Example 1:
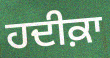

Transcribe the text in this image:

ਹਦੀਕ਼ਾ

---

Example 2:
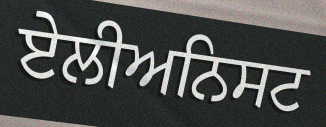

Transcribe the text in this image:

ਏਲੀਅਨਿਸਟ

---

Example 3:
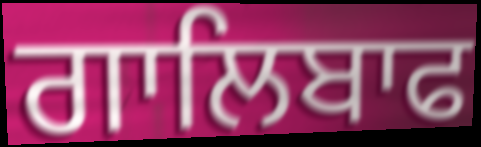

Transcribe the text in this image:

ਗਾਲਿਬਾਫ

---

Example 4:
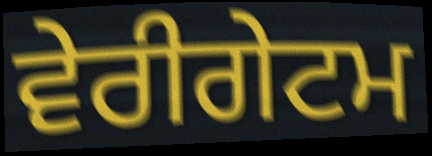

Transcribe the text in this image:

ਵੇਰੀਗੇਟਮ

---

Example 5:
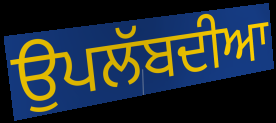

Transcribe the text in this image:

ਉਪਲੱਬਦੀਆ